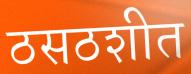
ठसठशीत